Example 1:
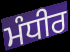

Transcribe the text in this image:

ਮੰਧੀਰ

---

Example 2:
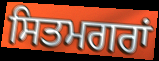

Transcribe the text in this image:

ਸਿਤਮਗਰਾਂ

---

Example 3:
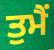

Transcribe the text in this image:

ਤੁਮੈਂ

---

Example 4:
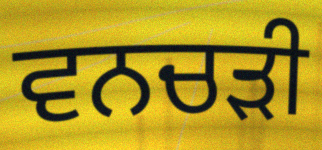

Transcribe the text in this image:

ਵਨਚੜੀ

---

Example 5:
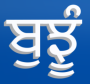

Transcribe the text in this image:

ਬੁਝੂੰ